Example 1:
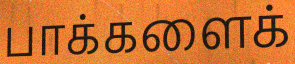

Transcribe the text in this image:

பாக்களைக்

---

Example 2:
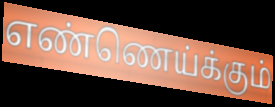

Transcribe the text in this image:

எண்ணெய்க்கும்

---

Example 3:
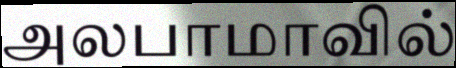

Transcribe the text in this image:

அலபாமாவில்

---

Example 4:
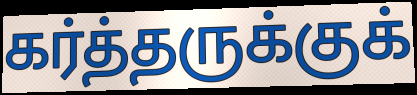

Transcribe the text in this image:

கர்த்தருக்குக்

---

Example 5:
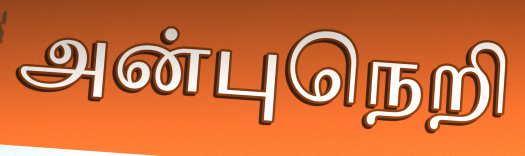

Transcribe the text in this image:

அன்புநெறி